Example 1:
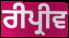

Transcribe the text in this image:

ਰੀਪ੍ਰੀਵ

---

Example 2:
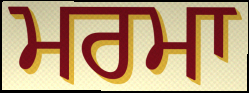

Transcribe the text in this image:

ਮਰਮਾ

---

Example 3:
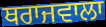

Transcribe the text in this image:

ਥਰਾਜਵਾਲਾ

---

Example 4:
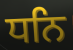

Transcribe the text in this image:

ਧਨਿ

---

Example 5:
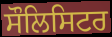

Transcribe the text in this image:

ਸੌਲਿਸਿਟਰ